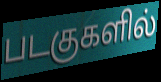
படகுகளில்